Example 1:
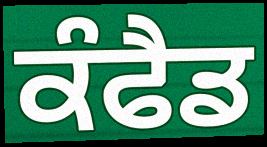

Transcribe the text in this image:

ਕੰਫੈਡ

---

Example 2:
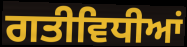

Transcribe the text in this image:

ਗਤੀਵਿਧੀਆਂ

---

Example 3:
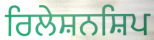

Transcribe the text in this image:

ਰਿਲੇਸ਼ਨਸ਼ਿਪ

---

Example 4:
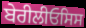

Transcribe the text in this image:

ਬੇਰੀਲੀਓਸਿਸ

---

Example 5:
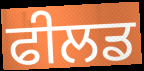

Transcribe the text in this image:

ਫੀਲਡ